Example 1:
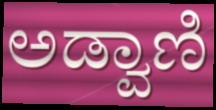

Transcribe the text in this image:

ಅಡ್ವಾಣಿ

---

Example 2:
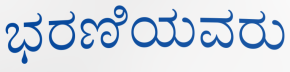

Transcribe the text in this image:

ಭರಣಿಯವರು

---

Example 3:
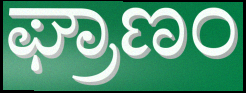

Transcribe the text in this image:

ಘ್ರಾಣಂ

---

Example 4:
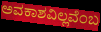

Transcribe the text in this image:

ಅವಕಾಶವಿಲ್ಲವೆಂಬ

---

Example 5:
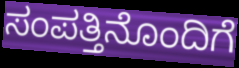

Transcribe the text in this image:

ಸಂಪತ್ತಿನೊಂದಿಗೆ